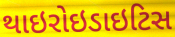
થાઇરોઇડાઇટિસ